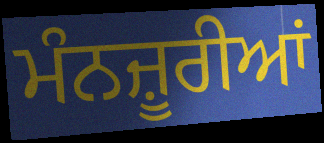
ਮੰਨਜ਼ੂਰੀਆਂ